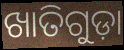
ଖାତିଗୁଡ଼ା